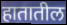
हातातील